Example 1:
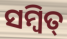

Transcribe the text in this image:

ସମ୍ବିତ୍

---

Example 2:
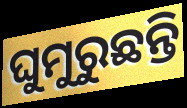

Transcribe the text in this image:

ଘୁମୁରୁଛନ୍ତି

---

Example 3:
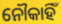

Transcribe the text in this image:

ନୌକାହିଁ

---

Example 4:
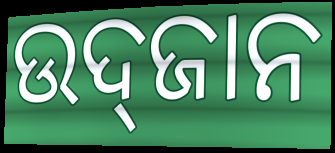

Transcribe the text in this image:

ଉଦ୍‌ଜାନ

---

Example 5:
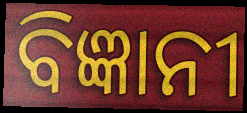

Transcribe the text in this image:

ବିଜ୍ଞାନୀ